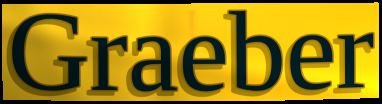
Graeber